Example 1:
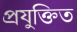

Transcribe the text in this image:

প্ৰযুক্তিত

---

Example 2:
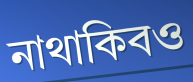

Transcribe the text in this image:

নাথাকিবও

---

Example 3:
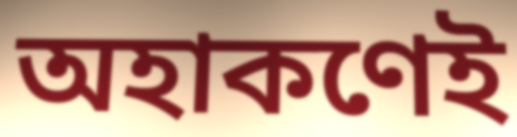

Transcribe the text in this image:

অহাকণেই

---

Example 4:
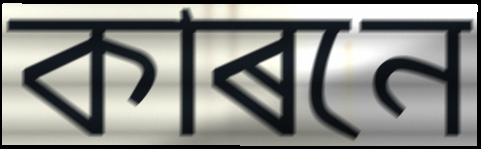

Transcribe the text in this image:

কাৰনে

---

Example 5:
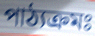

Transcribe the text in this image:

পাঠ্যক্ৰমঃ